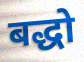
बद्धो